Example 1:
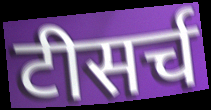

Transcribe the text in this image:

टीसर्च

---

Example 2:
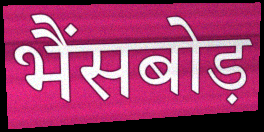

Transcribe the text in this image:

भैंसबोड़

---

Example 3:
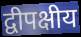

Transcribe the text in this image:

द्वीपक्षीय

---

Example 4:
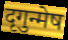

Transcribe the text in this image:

दृगुन्मेष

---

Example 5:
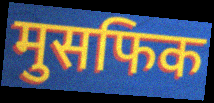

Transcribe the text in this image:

मुसफिक